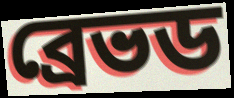
ব্রেভড